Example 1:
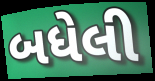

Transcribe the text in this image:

બધેલી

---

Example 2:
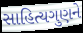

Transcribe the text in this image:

સાહિત્યગુણને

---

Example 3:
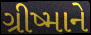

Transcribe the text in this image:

ગ્રીષ્માને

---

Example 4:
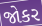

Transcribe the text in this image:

જોકર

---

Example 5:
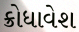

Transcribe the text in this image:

ક્રોધાવેશ